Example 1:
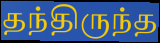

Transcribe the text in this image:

தந்திருந்த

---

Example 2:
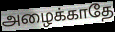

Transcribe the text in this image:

அழைக்காதே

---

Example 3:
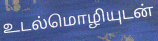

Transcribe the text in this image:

உடல்மொழியுடன்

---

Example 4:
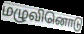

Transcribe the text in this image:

மழுவினொடு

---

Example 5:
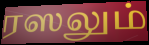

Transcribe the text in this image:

ரஸலும்